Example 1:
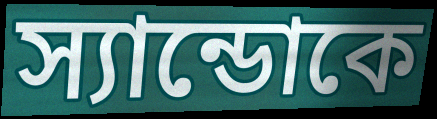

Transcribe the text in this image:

স্যান্ডোকে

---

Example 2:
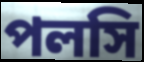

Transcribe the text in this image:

পলসি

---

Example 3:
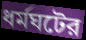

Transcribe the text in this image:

ধর্মঘটের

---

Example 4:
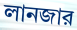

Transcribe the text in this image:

লানজার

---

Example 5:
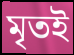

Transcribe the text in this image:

মৃতই